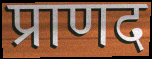
प्राणद